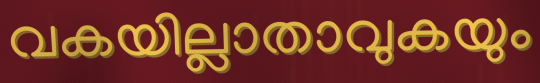
വകയില്ലാതാവുകയും